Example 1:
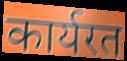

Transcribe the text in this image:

कार्यरत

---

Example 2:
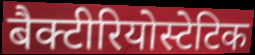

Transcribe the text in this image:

बैक्टीरियोस्टेटिक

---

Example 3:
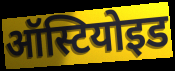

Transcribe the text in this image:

ऑस्टियोइड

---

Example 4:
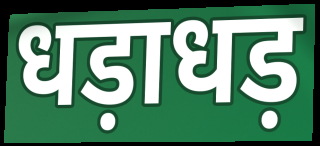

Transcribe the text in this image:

धड़ाधड़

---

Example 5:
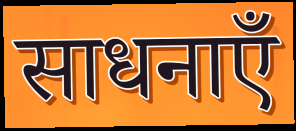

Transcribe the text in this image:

साधनाएँ